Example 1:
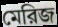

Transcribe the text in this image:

মেরিজ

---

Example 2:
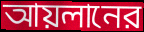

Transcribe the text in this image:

আয়লানের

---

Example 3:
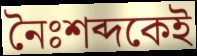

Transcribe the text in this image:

নৈঃশব্দকেই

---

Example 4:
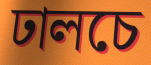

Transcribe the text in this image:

ঢালচে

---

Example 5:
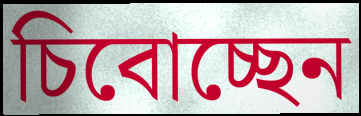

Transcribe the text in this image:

চিবোচ্ছেন